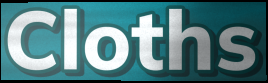
Cloths